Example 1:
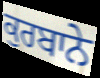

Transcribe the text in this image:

ਕੁਰਬਾਨੇ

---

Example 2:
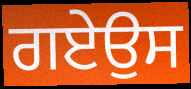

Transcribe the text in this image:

ਗਏਉਸ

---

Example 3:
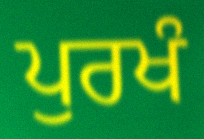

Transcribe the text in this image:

ਪੁਰਖੰ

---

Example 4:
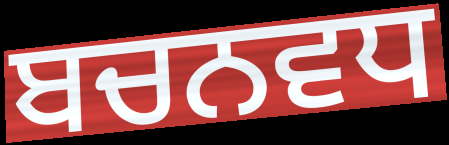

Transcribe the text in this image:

ਬਚਨਵਧ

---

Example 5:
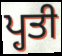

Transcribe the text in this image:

ਪ੍ਹਤੀ